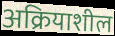
अक्रियाशील